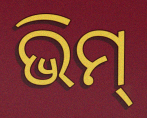
ଭିମ୍